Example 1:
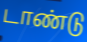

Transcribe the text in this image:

டாண்டு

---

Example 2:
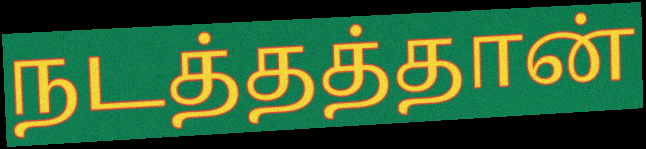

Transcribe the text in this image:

நடத்தத்தான்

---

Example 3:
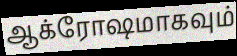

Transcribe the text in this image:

ஆக்ரோஷமாகவும்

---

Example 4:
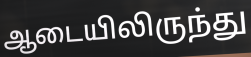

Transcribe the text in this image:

ஆடையிலிருந்து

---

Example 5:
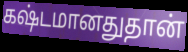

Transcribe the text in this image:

கஷ்டமானதுதான்